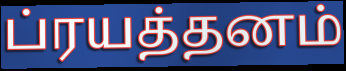
ப்ரயத்தனம்